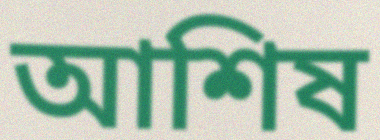
আশিষ